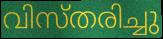
വിസ്തരിച്ചു